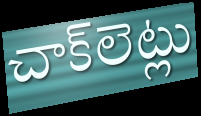
చాక్‌లెట్లు